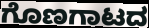
ಗೊಣಗಾಟದ